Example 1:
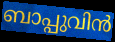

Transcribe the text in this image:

ബാപ്പുവിൻ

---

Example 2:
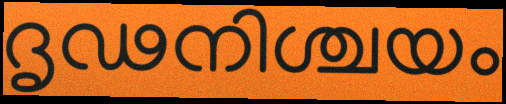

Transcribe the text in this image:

ദൃഢനിശ്ചയം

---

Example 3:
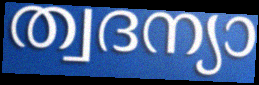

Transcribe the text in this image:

ത്വദന്യാ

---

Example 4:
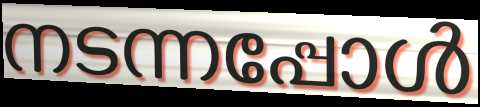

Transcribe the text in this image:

നടന്നപ്പോൾ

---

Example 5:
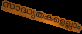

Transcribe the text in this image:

സാദ്ധ്യതകളെല്ലാം